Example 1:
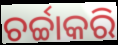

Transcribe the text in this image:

ଚର୍ଚ୍ଚାକରି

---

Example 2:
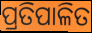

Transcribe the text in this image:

ପ୍ରତିପାଳିତ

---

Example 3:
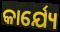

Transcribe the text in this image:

କାର୍ଯ୍ୟେ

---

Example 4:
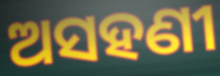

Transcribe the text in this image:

ଅସହଣୀ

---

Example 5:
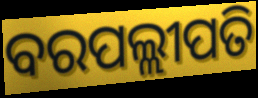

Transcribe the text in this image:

ବରପଲ୍ଲୀପତି